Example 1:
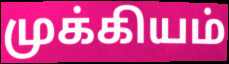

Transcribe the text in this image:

முக்கியம்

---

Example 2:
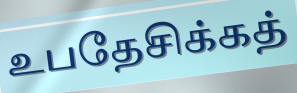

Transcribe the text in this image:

உபதேசிக்கத்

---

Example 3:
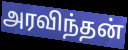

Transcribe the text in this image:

அரவிந்தன்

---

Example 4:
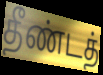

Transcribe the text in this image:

தீண்டத்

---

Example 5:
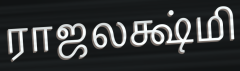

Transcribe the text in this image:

ராஜலக்ஷ்மி